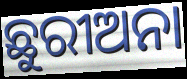
ଛୁରୀଅନା